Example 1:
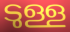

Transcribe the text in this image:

ടുള്ള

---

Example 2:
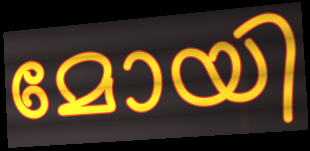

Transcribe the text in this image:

മോയി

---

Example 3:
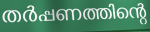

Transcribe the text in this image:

തർപ്പണത്തിന്റെ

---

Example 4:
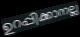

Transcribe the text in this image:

ഉറപ്പിക്കാനല്ല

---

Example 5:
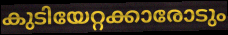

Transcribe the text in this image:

കുടിയേറ്റക്കാരോടും